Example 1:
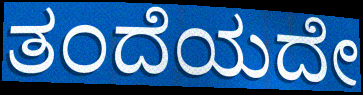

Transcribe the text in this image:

ತಂದೆಯದೇ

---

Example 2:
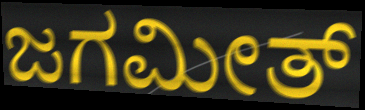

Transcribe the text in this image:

ಜಗಮೀತ್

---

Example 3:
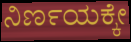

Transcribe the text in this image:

ನಿರ್ಣಯಕ್ಕೇ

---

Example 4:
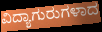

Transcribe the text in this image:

ವಿದ್ಯಾಗುರುಗಳಾದ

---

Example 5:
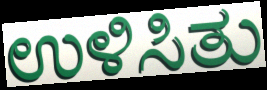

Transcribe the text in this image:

ಉಳಿಸಿತು